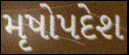
મૃષોપદેશ